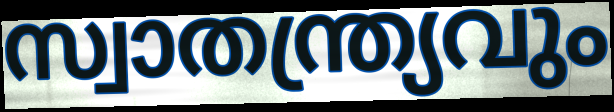
സ്വാതന്ത്ര്യവും